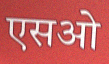
एसओ